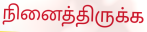
நினைத்திருக்க